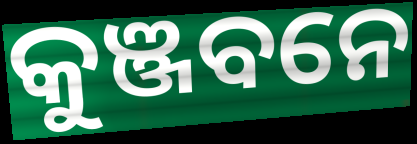
କୁଞ୍ଜବନେ